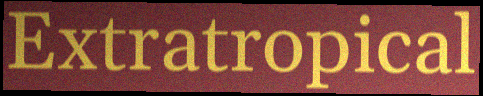
Extratropical